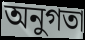
অনুগতা